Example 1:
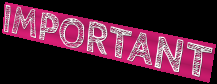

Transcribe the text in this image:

IMPORTANT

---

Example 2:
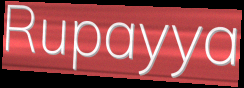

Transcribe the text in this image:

Rupayya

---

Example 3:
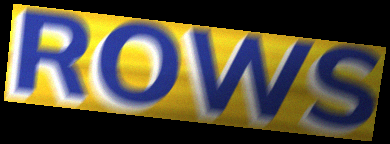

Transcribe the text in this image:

ROWS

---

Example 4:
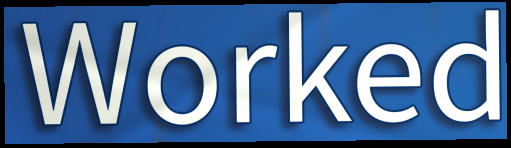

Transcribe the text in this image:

Worked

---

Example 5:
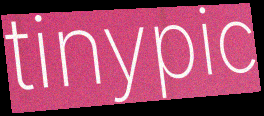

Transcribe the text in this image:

tinypic